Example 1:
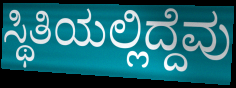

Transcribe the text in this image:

ಸ್ಥಿತಿಯಲ್ಲಿದ್ದೆವು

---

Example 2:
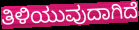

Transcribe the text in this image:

ತಿಳಿಯುವುದಾಗಿದೆ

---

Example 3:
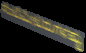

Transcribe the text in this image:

ಸೆಂಟಿಮೀಟರುಗಳಷ್ಟು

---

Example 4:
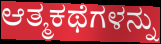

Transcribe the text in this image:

ಆತ್ಮಕಥೆಗಳನ್ನು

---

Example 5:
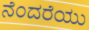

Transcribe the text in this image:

ನೆಂದರೆಯು